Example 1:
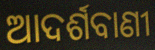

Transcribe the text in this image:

ଆଦର୍ଶବାଣୀ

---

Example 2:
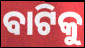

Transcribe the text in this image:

ବାଟିକୁ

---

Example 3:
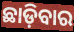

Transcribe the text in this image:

ଛାଡ଼ିବାର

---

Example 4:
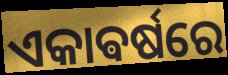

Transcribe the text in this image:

ଏକାଵର୍ଷରେ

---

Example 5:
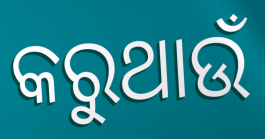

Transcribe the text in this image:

କରୁଥାଉଁ